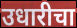
उधारीचा